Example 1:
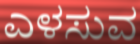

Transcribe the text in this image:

ಎಳಸುವ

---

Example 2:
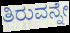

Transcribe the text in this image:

ತಿರುವನ್ನೇ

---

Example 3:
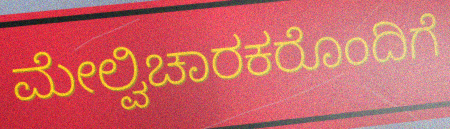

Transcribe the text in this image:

ಮೇಲ್ವಿಚಾರಕರೊಂದಿಗೆ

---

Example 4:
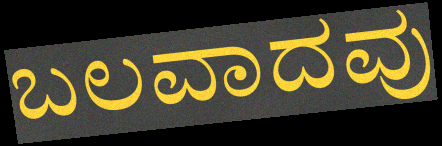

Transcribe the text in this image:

ಬಲವಾದವು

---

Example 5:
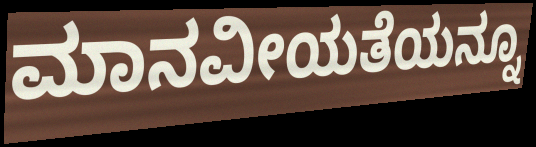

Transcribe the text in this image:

ಮಾನವೀಯತೆಯನ್ನೂ